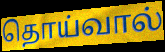
தொய்வால்